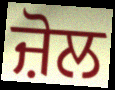
ਜ਼ੋਲ